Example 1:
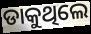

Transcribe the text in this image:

ଡାକୁଥିଲେ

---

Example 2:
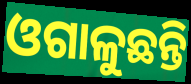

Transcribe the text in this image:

ଓଗାଳୁଛନ୍ତି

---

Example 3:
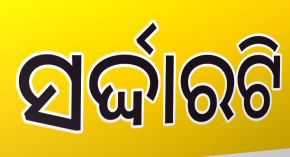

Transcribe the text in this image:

ସର୍ଦ୍ଦାରଟି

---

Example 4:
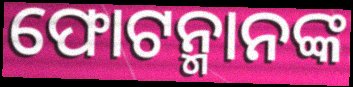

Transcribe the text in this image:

ଫୋଟନ୍ମାନଙ୍କ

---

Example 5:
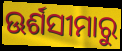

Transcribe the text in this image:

ଊର୍ଶସୀମାରୁ